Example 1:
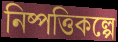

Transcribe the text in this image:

নিষ্পত্তিকল্পে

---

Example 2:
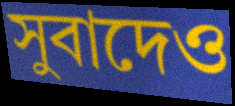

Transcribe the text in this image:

সুবাদেও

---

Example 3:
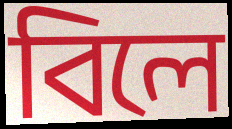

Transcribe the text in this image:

বিলে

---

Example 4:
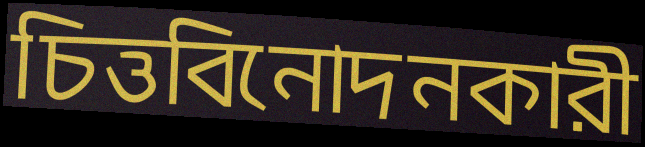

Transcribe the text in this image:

চিত্তবিনোদনকারী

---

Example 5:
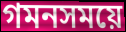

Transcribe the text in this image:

গমনসময়ে